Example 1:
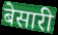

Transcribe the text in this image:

बेसारी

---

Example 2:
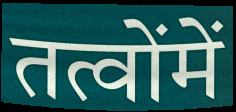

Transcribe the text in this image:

तत्वोंमें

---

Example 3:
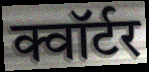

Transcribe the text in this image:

क्वॉर्टर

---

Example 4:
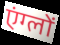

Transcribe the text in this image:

एंग्लों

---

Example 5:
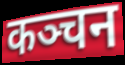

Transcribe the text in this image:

कञ्चन